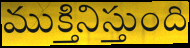
ముక్తినిస్తుంది